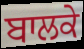
ਬਾਲਕੇ